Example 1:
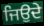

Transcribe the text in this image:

ਜਿਉਦੇ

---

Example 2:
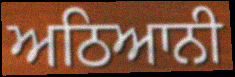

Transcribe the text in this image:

ਅਠਿਆਨੀ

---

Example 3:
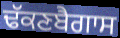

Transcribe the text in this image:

ਢੱਕਣਬੈਗਾਸ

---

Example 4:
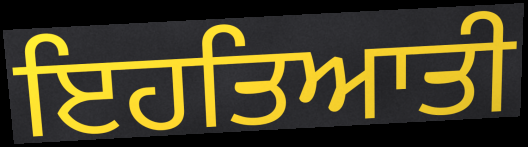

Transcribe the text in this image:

ਇਹਤਿਆਤੀ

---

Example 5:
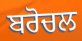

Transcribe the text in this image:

ਬਰੋਚਲ